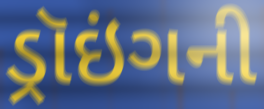
ડ્રૉઇંગની